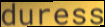
duress